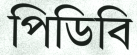
পিডিবি